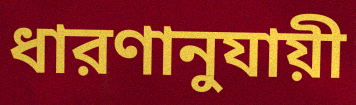
ধারণানুযায়ী